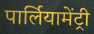
पार्लियामेंट्री